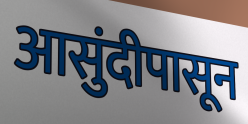
आसुंदीपासून